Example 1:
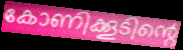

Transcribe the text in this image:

കോണിക്കൂടിന്റെ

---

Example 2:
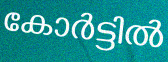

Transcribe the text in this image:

കോർട്ടിൽ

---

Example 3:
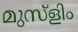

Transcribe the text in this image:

മുസ്ളിം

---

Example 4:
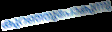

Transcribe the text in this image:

കുറഞ്ഞുപോകുന്നു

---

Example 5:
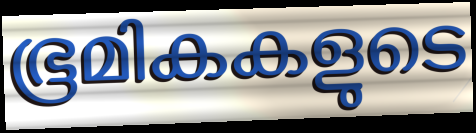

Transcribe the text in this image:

ഭൂമികകളുടെ